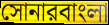
সোনারবাংলা